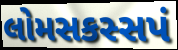
લોમસકસ્સપં